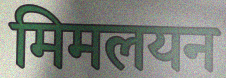
मिमलयन